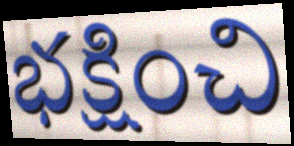
భక్షించి